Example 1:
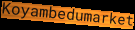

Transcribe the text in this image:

Koyambedumarket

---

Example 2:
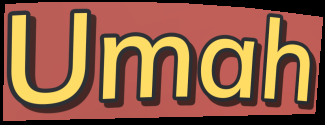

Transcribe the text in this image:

Umah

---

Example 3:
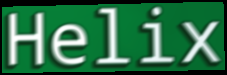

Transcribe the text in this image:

Helix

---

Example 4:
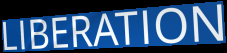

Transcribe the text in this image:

LIBERATION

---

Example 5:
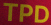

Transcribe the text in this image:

TPD